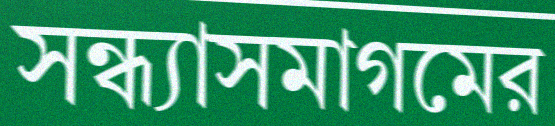
সন্ধ্যাসমাগমের